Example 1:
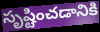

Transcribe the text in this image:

సృష్టించడానికి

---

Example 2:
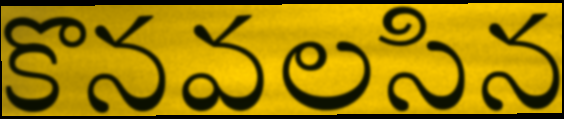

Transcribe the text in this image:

కొనవలసిన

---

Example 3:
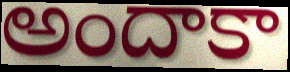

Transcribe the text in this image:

అందాకా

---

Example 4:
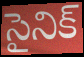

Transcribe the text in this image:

సైనిక్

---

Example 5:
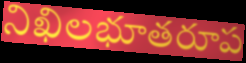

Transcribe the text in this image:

నిఖిలభూతరూప